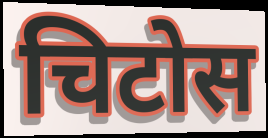
चिटोस